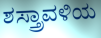
ಶಸ್ತ್ರಾವಳಿಯ